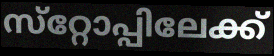
സ്‌റ്റോപ്പിലേക്ക്